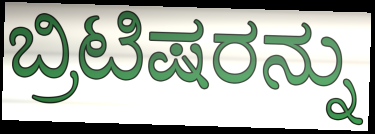
ಬ್ರಿಟಿಷರನ್ನು